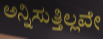
ಅನ್ನಿಸುತ್ತಿಲ್ಲವೇ